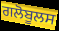
ਗਲੋਬੂਲਸ